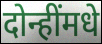
दोन्हींमधे